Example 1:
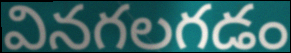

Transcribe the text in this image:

వినగలగడం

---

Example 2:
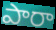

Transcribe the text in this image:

పారా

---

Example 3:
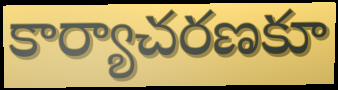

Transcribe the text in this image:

కార్యాచరణకూ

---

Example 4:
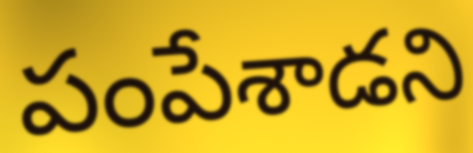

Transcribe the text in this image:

పంపేశాడని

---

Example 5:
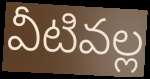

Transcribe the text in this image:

వీటివల్ల